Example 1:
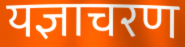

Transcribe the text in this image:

यज्ञाचरण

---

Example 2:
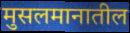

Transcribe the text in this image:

मुसलमानातील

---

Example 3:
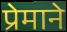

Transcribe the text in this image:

प्रेमाने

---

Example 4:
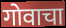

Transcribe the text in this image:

गोवाचा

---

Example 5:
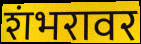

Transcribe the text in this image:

शंभरावर